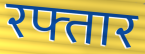
रफ्‍तार